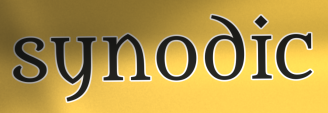
synodic